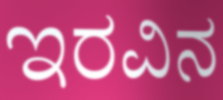
ಇರವಿನ